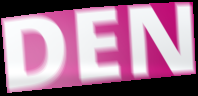
DEN